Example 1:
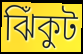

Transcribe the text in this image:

ঝিঁকুট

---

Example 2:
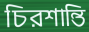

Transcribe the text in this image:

চিরশান্তি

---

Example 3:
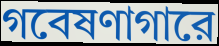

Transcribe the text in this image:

গবেষণাগারে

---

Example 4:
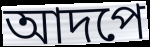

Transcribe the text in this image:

আদপে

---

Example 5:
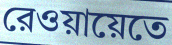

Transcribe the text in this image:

রেওয়ায়েতে